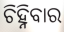
ଚିହ୍ନିବାର